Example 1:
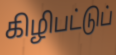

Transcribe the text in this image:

கிழிபட்டுப்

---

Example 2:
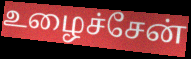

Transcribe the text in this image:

உழைச்சேன்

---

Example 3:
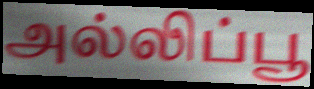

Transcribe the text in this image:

அல்லிப்பூ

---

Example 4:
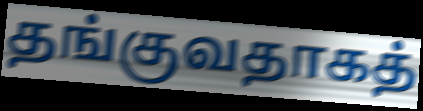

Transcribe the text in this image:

தங்குவதாகத்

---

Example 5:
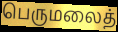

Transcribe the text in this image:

பெருமலைத்